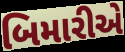
બિમારીએ